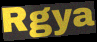
Rgya